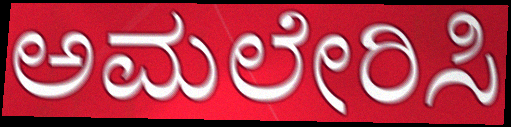
ಅಮಲೇರಿಸಿ